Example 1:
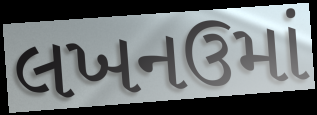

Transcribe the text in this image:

લખનઉમાં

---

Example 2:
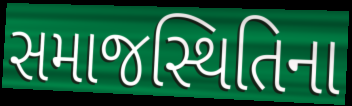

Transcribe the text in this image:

સમાજસ્થિતિના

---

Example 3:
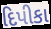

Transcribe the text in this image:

દિપીકા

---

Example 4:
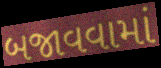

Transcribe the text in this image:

બજાવવામાં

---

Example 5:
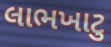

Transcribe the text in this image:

લાભખાટુ